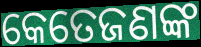
କେତେଜଣଙ୍କ